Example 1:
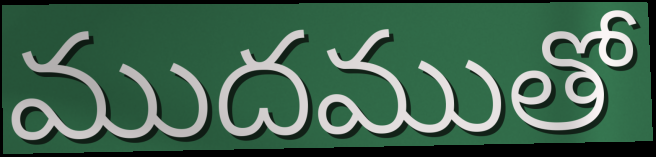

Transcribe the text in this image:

ముదముతో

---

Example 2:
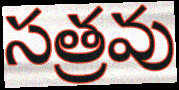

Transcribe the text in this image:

సత్రవు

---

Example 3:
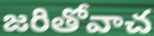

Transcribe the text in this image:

జరితోవాచ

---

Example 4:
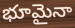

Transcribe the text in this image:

భూమైనా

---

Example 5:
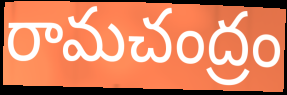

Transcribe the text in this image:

రామచంద్రం